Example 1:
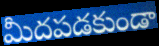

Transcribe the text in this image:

మీదపడకుండా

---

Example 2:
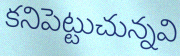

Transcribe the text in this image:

కనిపెట్టుచున్నవి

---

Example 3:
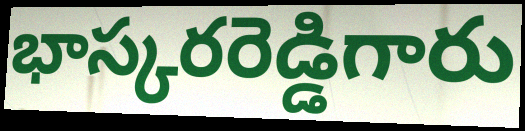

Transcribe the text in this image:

భాస్కరరెడ్డిగారు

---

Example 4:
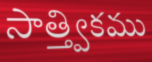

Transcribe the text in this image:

సాత్త్వికము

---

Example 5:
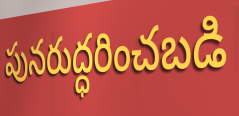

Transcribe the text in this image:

పునరుద్ధరించబడి